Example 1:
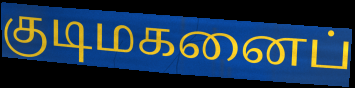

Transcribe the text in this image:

குடிமகனைப்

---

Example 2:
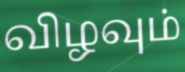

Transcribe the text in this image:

விழவும்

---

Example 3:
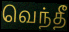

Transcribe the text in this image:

வெந்தீ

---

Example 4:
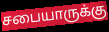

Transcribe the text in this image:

சபையாருக்கு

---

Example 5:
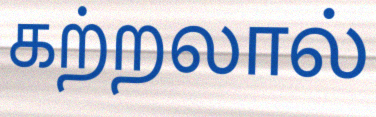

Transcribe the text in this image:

கற்றலால்